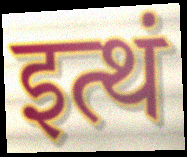
इत्थं